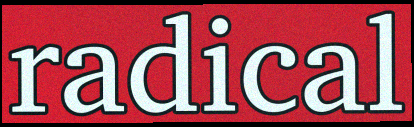
radical